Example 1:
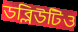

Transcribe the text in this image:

ডব্লিউটিও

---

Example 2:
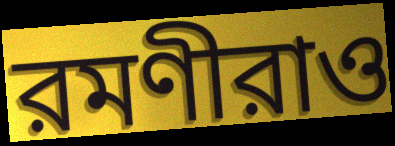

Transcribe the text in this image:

রমণীরাও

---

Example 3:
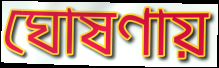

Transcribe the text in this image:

ঘোষণায়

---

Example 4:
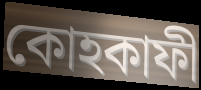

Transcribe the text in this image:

কোহকাফী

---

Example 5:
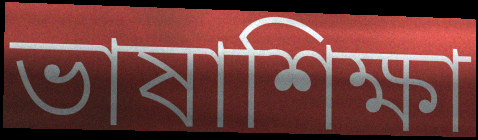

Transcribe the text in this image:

ভাষাশিক্ষা